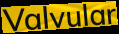
Valvular